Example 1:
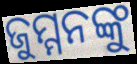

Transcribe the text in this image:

ଜୁମ୍ମନଙ୍କୁ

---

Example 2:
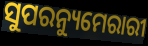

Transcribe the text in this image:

ସୁପରନ୍ୟୁମେରାରୀ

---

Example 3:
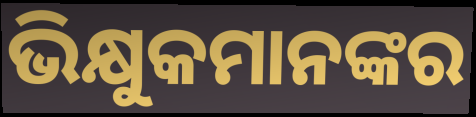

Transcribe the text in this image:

ଭିକ୍ଷୁକମାନଙ୍କର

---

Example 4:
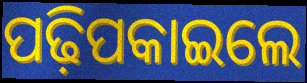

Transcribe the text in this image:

ପଢ଼ିପକାଇଲେ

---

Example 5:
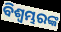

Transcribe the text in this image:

ବିଶ୍ୱମ୍ଭରଙ୍କ